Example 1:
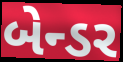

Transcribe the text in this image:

બેન્ડર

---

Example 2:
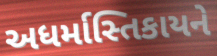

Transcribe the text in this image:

અધર્માસ્તિકાયને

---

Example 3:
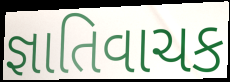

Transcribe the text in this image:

જ્ઞાતિવાચક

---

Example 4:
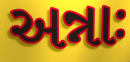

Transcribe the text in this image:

અન્નાઃ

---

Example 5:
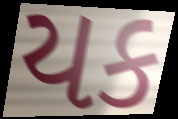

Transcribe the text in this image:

યક